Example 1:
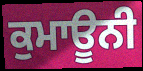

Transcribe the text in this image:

ਕੁਮਾਊਨੀ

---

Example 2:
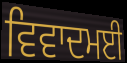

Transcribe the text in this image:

ਵਿਵਾਦਮਈ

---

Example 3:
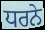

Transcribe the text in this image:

ਧਰਨੇ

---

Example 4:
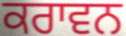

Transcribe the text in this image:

ਕਰਾਵਨ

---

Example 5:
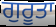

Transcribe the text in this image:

ਗੁਰੂਤਾ